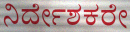
ನಿರ್ದೇಶಕರೇ